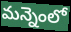
మన్నెంలో